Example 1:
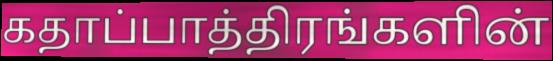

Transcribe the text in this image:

கதாப்பாத்திரங்களின்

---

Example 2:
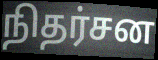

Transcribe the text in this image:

நிதர்சன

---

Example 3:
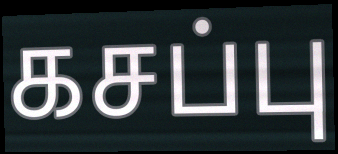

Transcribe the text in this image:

கசப்பு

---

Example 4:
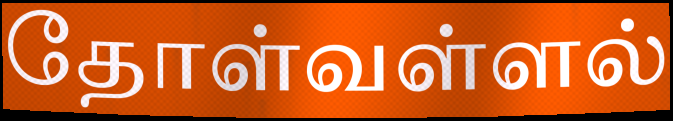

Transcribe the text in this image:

தோள்வள்ளல்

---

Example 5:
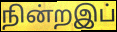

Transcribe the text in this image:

நின்றஇப்